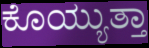
ಕೊಯ್ಯುತ್ತಾ